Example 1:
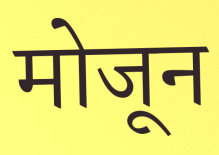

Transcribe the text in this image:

मोजून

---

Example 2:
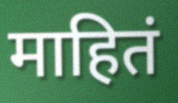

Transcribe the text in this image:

माहितं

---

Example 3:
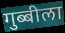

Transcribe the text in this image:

गुब्बीला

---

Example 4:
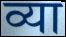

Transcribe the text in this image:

व्या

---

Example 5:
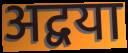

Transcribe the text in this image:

अद्वया